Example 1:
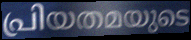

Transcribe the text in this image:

പ്രിയതമയുടെ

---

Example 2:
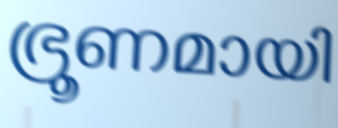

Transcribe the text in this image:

ഭ്രൂണമായി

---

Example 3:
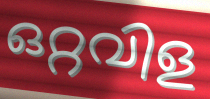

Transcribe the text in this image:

ഒറ്റവിള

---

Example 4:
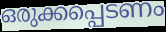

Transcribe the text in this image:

ഒരുക്കപ്പെടണം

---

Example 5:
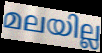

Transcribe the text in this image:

മലയില്ല